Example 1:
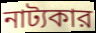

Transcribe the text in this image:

নাট্যকার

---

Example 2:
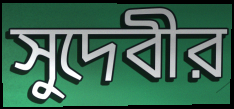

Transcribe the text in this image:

সুদেবীর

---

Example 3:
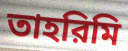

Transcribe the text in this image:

তাহরিমি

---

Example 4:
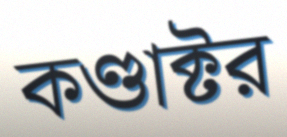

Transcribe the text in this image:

কণ্ডাক্টর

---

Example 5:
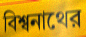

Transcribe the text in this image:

বিশ্বনাথের